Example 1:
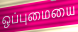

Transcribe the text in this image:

ஒப்புமையை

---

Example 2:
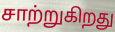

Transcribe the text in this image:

சாற்றுகிறது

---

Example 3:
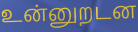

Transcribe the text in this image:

உன்னுறடன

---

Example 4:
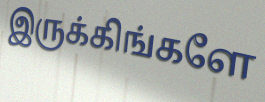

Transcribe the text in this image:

இருக்கிங்களே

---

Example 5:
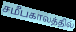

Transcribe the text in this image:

சமீபகாலத்தில்